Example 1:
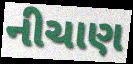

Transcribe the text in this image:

નીચાણ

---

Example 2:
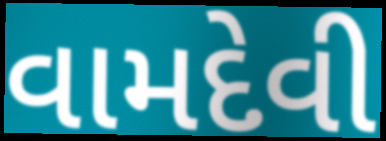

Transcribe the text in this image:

વામદેવી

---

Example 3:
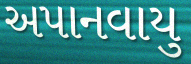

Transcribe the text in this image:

અપાનવાયુ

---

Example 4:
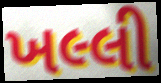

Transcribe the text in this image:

ખલ્લી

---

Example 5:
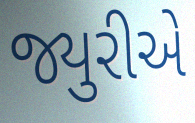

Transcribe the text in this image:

જ્યુરીએ